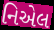
નિએલ